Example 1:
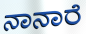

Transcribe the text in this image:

ನಾನಾರೆ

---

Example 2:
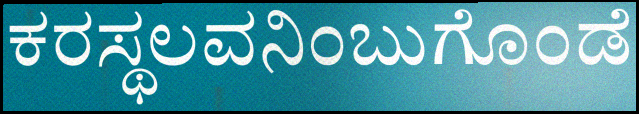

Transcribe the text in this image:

ಕರಸ್ಥಲವನಿಂಬುಗೊಂಡೆ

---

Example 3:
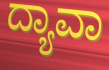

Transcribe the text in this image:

ದ್ಯಾವಾ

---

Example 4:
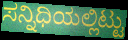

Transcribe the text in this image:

ಸನ್ನಿಧಿಯಲ್ಲಿಟ್ಟು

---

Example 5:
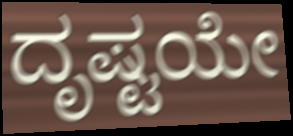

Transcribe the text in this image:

ದೃಷ್ಟಯೇ